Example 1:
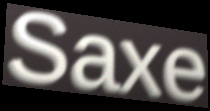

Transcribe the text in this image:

Saxe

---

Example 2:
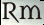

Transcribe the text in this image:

Rm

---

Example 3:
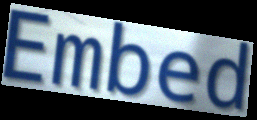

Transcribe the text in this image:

Embed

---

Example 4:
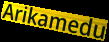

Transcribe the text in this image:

Arikamedu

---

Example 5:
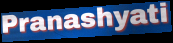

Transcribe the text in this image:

Pranashyati